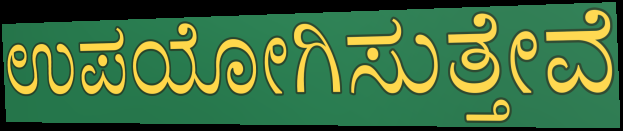
ಉಪಯೋಗಿಸುತ್ತೇವೆ